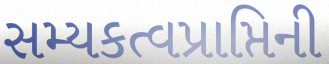
સમ્યકત્વપ્રાપ્તિની